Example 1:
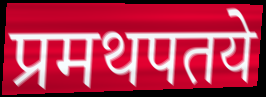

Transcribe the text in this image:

प्रमथपतये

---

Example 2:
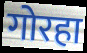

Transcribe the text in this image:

गोरहा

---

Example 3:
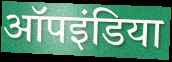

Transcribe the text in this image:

ऑपइंडिया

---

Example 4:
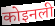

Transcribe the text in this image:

कोइनली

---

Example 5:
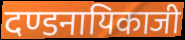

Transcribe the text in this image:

दण्डनायिकाजी